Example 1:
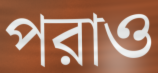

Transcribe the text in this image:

পরাও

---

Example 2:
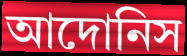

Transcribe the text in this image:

আদোনিস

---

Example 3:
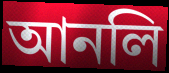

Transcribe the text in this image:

আনলি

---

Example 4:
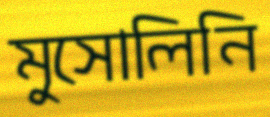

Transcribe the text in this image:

মুসোলিনি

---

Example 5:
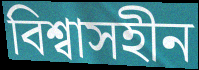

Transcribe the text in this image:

বিশ্বাসহীন